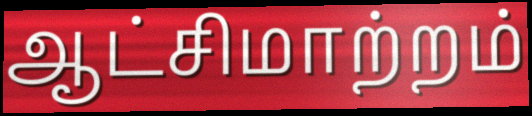
ஆட்சிமாற்றம்